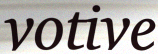
votive